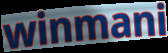
winmani